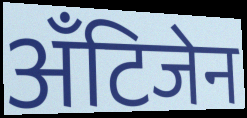
अँटिजेन